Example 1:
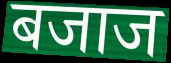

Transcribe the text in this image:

बजाज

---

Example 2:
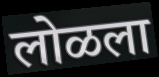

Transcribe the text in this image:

लोळला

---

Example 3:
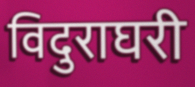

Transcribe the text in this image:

विदुराघरी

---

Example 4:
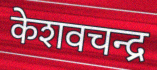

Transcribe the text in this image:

केशवचन्द्र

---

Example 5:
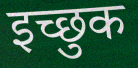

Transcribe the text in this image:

इच्छुक